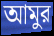
আমুর